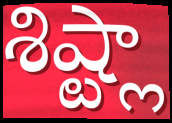
శిష్ట్లా